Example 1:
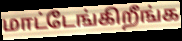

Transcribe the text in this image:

மாட்டேங்கிறீங்க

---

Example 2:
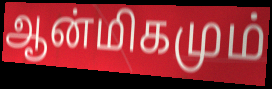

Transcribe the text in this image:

ஆன்மிகமும்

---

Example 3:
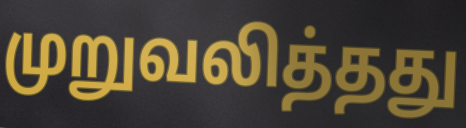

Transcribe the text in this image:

முறுவலித்தது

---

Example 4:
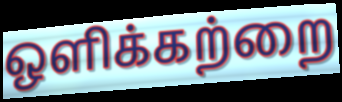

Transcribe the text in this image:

ஒளிக்கற்றை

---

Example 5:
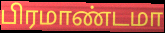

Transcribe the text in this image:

பிரமாண்டமா